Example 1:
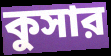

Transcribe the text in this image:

কুসার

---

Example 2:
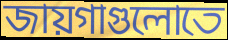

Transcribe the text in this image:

জায়গাগুলোতে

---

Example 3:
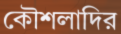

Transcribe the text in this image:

কৌশলাদির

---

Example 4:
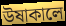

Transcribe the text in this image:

উষাকালে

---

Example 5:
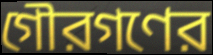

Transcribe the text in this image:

গৌরগণের